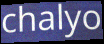
chalyo